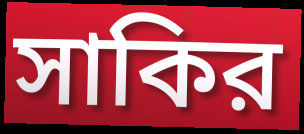
সাকির